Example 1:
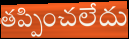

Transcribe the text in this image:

తప్పించలేదు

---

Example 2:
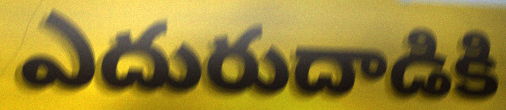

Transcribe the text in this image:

ఎదురుదాడికి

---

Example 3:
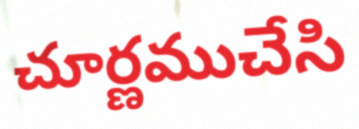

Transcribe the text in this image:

చూర్ణముచేసి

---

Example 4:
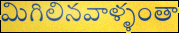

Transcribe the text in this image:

మిగిలినవాళ్ళంతా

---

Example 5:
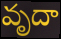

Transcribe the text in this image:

వృదా